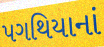
પગથિયાનાં